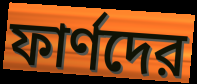
ফার্ণদের